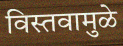
विस्तवामुळे